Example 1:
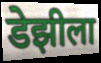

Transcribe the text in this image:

डेझीला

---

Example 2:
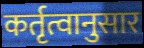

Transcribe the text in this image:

कर्तृत्वानुसार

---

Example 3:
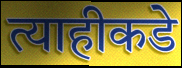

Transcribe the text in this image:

त्याहीकडे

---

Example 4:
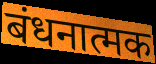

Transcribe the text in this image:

बंधनात्मक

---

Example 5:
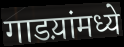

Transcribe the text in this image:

गाडय़ांमध्ये